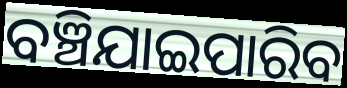
ବଞ୍ଚିଯାଇପାରିବ